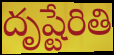
దృష్టేరితి